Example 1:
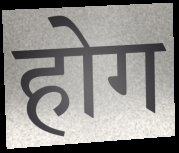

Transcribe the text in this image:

होग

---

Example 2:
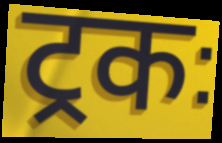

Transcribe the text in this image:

ट्रकः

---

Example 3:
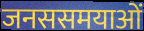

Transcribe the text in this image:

जनससमयाओं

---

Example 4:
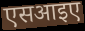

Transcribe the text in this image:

एसआइए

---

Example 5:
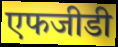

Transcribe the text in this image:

एफजीडी